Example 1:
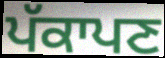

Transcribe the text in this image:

ਪੱਕਾਪਣ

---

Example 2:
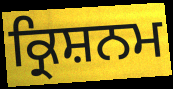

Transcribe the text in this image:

ਕ੍ਰਿਸ਼ਨਮ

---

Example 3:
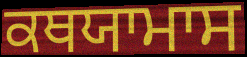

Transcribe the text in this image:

ਕਥਯਾਮਾਸ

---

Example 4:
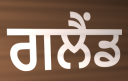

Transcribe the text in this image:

ਗਲੈਂਡ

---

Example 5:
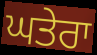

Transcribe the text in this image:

ਘਤੇਰਾ